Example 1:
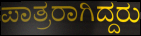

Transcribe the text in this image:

ಪಾತ್ರರಾಗಿದ್ದರು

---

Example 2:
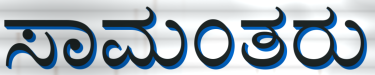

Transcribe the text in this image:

ಸಾಮಂತರು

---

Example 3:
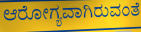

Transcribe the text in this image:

ಆರೋಗ್ಯವಾಗಿರುವಂತೆ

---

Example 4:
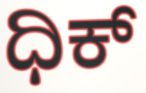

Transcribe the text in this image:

ಧಿಕ್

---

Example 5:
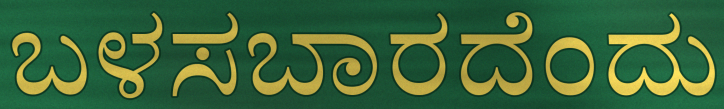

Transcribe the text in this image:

ಬಳಸಬಾರದೆಂದು